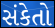
સંકેતો